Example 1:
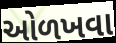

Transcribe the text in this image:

ઓળખવા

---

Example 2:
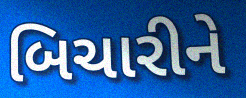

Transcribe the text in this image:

બિચારીને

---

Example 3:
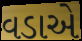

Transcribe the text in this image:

વડાએ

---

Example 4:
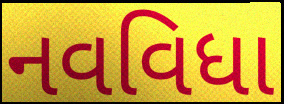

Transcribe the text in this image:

નવવિધા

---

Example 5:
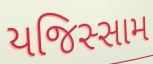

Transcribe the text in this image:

યજિસ્સામ